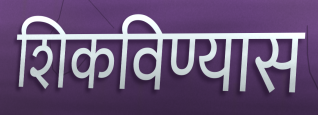
शिकविण्यास